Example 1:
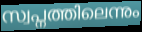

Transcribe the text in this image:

സ്വപ്നത്തിലെന്നും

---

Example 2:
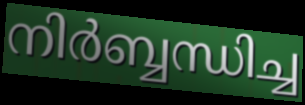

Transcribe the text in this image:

നിർബ്ബന്ധിച്ച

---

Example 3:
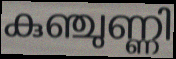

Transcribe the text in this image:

കുഞ്ചുണ്ണി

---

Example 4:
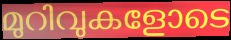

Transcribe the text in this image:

മുറിവുകളോടെ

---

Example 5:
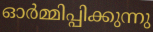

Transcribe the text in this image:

ഓർമ്മിപ്പിക്കുന്നു